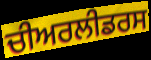
ਚੀਅਰਲੀਡਰਸ